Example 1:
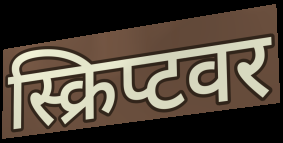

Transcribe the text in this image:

स्क्रिप्टवर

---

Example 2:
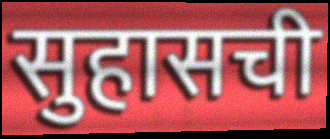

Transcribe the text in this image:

सुहासची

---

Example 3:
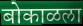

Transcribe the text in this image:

बोकाळला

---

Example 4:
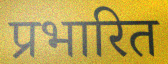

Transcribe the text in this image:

प्रभारित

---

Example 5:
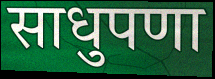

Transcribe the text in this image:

साधुपणा